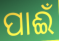
ପାଈଁ